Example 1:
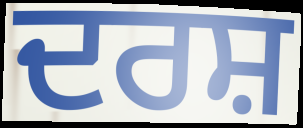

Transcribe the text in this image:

ਦਰਸ਼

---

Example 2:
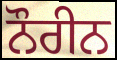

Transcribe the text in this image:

ਨੌਰੀਨ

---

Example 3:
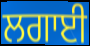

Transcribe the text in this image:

ਲਗਾਈ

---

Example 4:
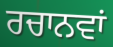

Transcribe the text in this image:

ਰਚਾਨਵਾਂ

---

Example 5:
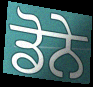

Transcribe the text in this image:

ਡੋਨੇ